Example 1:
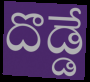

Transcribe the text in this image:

దొడ్డే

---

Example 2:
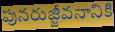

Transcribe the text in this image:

పునరుజ్జీవనానికి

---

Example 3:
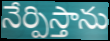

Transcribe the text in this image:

నేర్పిస్తాను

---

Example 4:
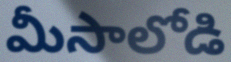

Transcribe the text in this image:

మీసాలోడి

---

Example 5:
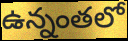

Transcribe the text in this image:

ఉన్నంతలో